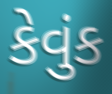
કેવુંક